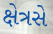
ક્ષેત્રસે